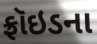
ફ્રૉઇડના